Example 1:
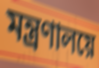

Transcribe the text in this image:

মন্ত্ৰণালয়ে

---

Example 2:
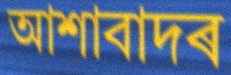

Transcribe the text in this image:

আশাবাদৰ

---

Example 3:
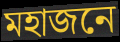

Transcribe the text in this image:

মহাজনে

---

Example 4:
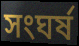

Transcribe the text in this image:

সংঘৰ্ষ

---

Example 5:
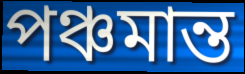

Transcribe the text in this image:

পঞ্চমান্ত